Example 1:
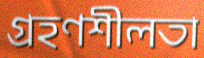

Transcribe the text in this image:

গ্রহণশীলতা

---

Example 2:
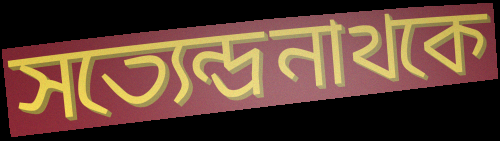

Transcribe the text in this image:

সত্যেন্দ্রনাথকে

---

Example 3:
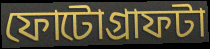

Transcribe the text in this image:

ফোটোগ্রাফটা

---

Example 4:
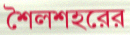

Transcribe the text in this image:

শৈলশহরের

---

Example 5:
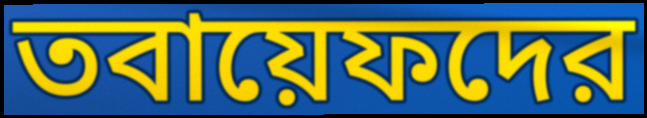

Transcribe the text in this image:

তবায়েফদের